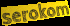
serokom